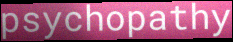
psychopathy